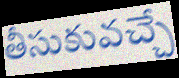
తీసుకువచ్చే